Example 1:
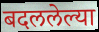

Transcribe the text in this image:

बदललेल्या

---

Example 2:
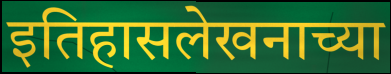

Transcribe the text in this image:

इतिहासलेखनाच्या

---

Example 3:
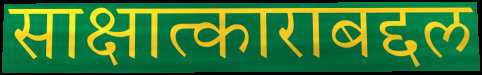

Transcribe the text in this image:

साक्षात्काराबद्दल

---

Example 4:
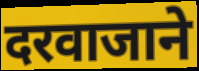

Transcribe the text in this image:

दरवाजाने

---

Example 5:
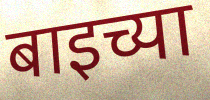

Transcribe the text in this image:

बाइच्या